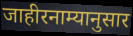
जाहीरनाम्यानुसार